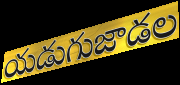
యడుగుజాడల